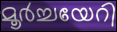
മൂർച്ചയേറി